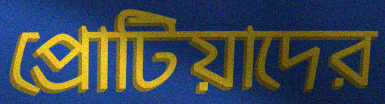
প্রোটিয়াদের